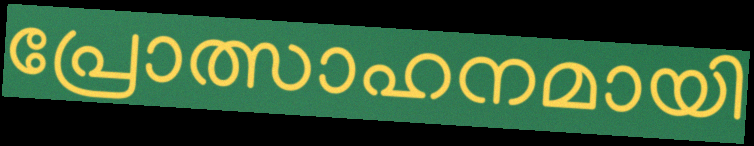
പ്രോത്സാഹനമായി